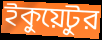
ইকুয়েটুর